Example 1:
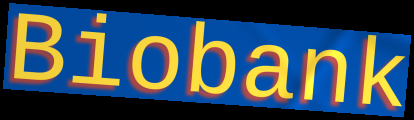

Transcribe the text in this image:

Biobank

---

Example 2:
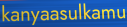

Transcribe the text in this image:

kanyaasulkamu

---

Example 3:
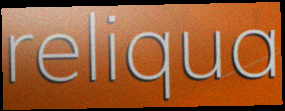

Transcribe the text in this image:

reliqua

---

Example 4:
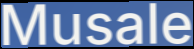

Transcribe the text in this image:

Musale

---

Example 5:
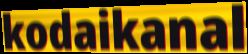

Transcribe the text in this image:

kodaikanal